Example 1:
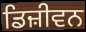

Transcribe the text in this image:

ਡਿਜ਼ੀਵਨ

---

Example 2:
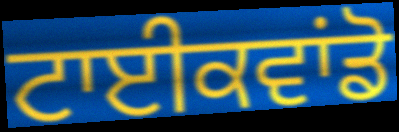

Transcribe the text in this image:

ਟਾਈਕਵਾਂਡੋ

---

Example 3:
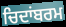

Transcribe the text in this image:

ਚਿਦਾਂਬਰਮ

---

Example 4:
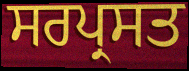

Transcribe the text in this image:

ਸਰਪ੍ਰਸਤ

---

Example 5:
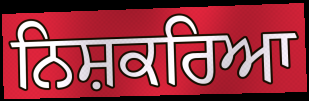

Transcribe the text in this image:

ਨਿਸ਼ਕਰਿਆ